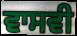
ਵਾਸਵੀ